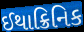
ઈથાક્રિનિક